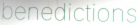
benedictions